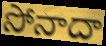
సోనాదా